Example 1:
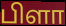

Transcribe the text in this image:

பிளா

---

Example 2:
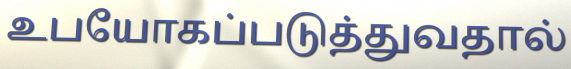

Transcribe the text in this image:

உபயோகப்படுத்துவதால்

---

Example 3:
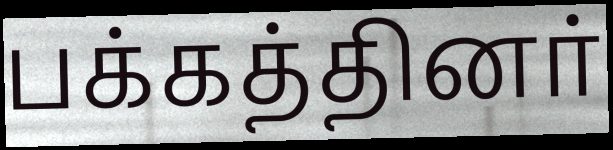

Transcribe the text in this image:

பக்கத்தினர்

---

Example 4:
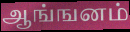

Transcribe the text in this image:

ஆங்ஙனம்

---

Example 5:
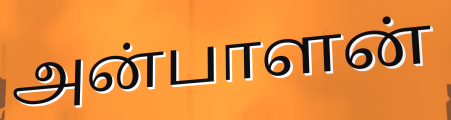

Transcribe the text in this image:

அன்பாளன்